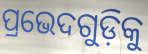
ପ୍ରଭେଦଗୁଡ଼ିକୁ